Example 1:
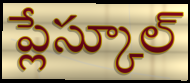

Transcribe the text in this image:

ప్లేస్కూల్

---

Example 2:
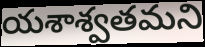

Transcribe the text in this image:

యశాశ్వతమని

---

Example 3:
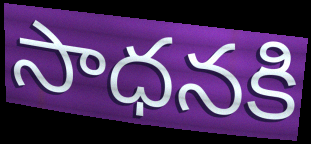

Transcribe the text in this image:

సాధనకి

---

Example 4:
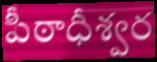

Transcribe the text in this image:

పీఠాధీశ్వర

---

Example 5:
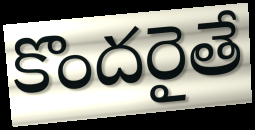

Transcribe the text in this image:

కొందరైతే